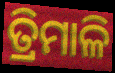
ତ୍ରିମାଳି